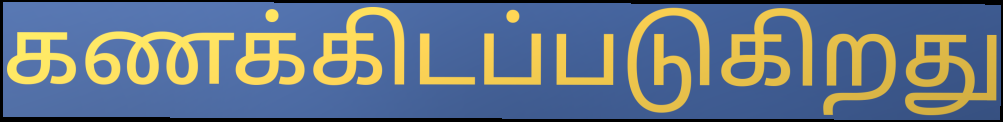
கணக்கிடப்படுகிறது